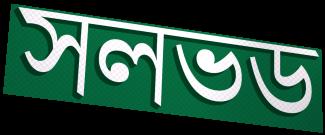
সলভড